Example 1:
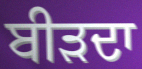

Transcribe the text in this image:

ਬੀੜਦਾ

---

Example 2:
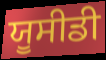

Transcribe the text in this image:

ਯੂਸੀਡੀ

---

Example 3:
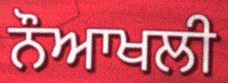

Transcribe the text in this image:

ਨੌਆਖਲੀ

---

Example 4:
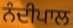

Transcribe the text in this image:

ਨੰਦੀਪਾਲ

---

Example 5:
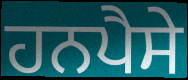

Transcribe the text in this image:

ਹਨਪੈਸੇ